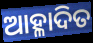
ଆହ୍ଳାଦିତ